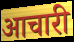
आचारी